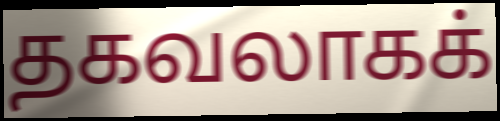
தகவலாகக்